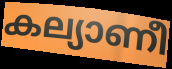
കല്യാണീ